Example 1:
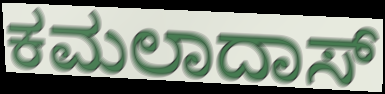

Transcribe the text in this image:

ಕಮಲಾದಾಸ್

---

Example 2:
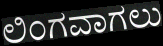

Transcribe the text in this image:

ಲಿಂಗವಾಗಲು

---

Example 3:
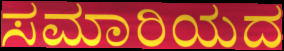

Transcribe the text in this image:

ಸಮಾರಿಯದ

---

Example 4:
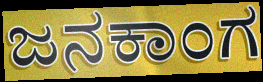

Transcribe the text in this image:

ಜನಕಾಂಗ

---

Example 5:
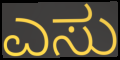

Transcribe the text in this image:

ಎಸು